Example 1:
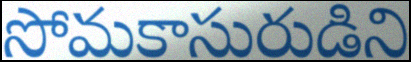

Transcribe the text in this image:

సోమకాసురుడిని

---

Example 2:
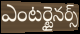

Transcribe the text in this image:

ఎంటర్టైనర్స్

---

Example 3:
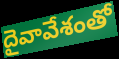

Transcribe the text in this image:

దైవావేశంతో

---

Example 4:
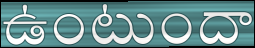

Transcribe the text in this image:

ఉంటుందా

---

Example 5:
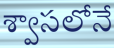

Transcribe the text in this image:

శ్వాసలోనే